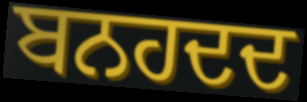
ਬਨਹਦਦ